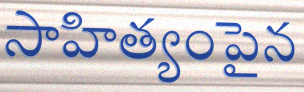
సాహిత్యంపైన